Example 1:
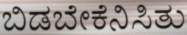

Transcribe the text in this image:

ಬಿಡಬೇಕೆನಿಸಿತು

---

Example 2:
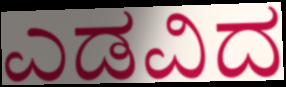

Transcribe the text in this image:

ಎಡವಿದ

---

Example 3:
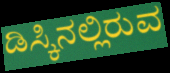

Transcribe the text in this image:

ಡಿಸ್ಕಿನಲ್ಲಿರುವ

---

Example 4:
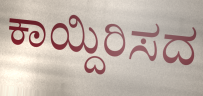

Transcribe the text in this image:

ಕಾಯ್ದಿರಿಸದ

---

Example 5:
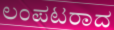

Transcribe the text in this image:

ಲಂಪಟರಾದ